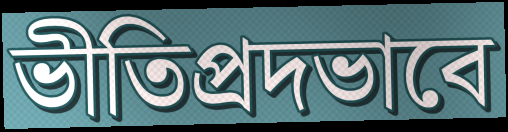
ভীতিপ্রদভাবে